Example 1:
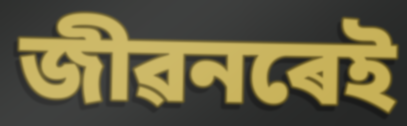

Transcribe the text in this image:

জীৱনৰেই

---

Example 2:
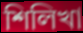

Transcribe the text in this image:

শিলিখা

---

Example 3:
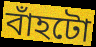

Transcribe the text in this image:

বাঁহটো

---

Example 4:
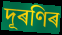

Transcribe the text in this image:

দূৰণিৰ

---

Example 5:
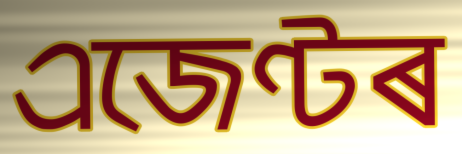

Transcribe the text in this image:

এজেণ্টৰ